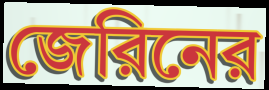
জেরিনের